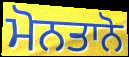
ਮੋਨਤਾਨੋ